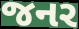
જનર